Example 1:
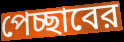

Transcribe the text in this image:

পেচ্ছাবের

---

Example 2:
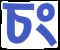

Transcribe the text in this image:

চং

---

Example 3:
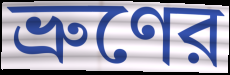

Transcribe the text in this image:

ভ্রুণের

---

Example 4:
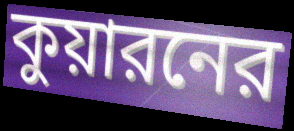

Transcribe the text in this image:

কুয়ারনের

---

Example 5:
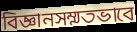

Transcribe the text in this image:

বিজ্ঞানসম্মতভাবে